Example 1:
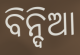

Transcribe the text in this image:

ବିନ୍ଦିଆ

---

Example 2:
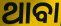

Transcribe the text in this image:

ଥାବା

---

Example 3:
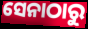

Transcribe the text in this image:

ସେନାଠାରୁ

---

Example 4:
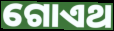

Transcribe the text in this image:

ଗୋଏଥ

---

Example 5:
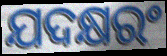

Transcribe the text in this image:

ଯଦକ୍ଷରଂ